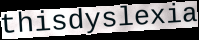
thisdyslexia